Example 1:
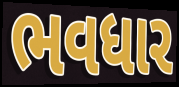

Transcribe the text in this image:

ભવધાર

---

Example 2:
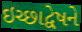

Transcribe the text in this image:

ઇચ્છાદ્વેષને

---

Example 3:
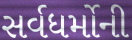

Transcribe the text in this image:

સર્વધર્મોની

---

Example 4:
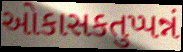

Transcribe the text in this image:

ઓકાસકતુપ્પન્નં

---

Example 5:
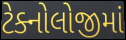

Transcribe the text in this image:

ટેક્નોલોજીમાં